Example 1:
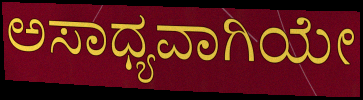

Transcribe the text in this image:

ಅಸಾಧ್ಯವಾಗಿಯೇ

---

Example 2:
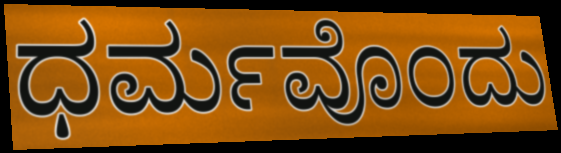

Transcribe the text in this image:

ಧರ್ಮವೊಂದು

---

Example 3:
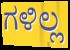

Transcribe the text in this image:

ಗಳಿಲ್ಲ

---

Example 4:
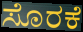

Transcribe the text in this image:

ಸೊರಕೆ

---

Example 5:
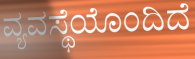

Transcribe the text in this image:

ವ್ಯವಸ್ಥೆಯೊಂದಿದೆ